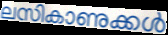
ലസികാണുക്കൾ